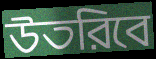
উতরিবে